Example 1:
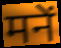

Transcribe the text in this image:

मनें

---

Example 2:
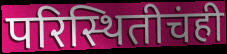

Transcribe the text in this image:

परिस्थितीचंही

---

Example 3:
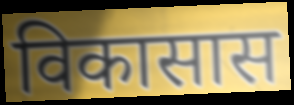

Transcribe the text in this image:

विकासास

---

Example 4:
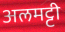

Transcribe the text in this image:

अलमट्टी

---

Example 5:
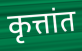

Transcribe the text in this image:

कृत्तांत